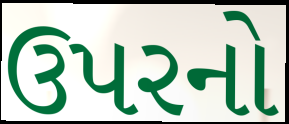
ઉપરનો